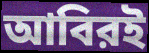
আবিরই